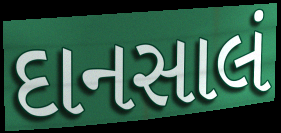
દાનસાલં